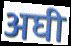
अघी